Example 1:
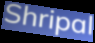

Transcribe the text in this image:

Shripal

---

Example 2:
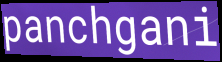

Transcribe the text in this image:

panchgani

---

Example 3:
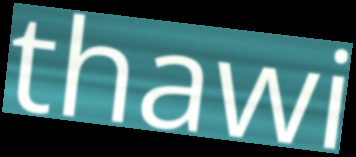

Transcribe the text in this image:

thawi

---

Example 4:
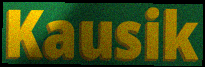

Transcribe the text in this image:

Kausik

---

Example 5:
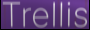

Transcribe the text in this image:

Trellis